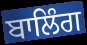
ਬਾਲਿੰਗ